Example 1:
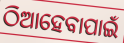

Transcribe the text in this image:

ଠିଆହେବାପାଇଁ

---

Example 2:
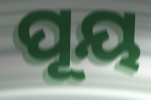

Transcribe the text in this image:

ପୂୟ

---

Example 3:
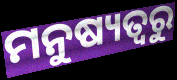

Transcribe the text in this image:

ମନୁଷ୍ୟତ୍ୱରୁ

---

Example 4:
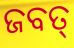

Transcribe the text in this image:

ଜବତ୍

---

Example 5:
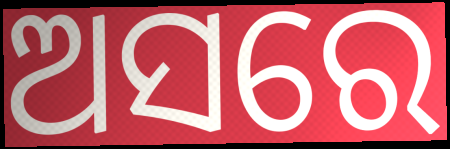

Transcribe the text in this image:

ଅସରେ